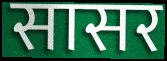
सासर